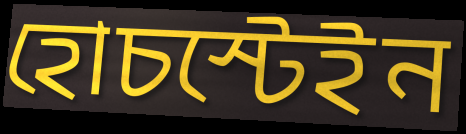
হোচস্টেইন